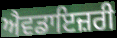
ਐਵਡਾਇਜ਼ਰੀ